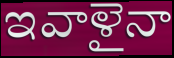
ఇవాళైనా